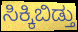
ಸಿಕ್ಕಿಬಿಡ್ತು